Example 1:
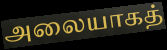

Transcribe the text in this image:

அலையாகத்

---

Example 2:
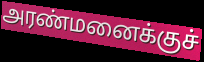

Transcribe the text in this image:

அரண்மனைக்குச்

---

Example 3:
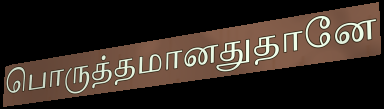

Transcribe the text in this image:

பொருத்தமானதுதானே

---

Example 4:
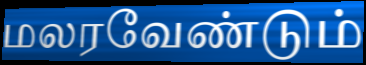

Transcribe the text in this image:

மலரவேண்டும்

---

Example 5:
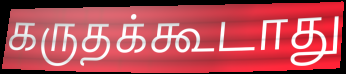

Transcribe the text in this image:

கருதக்கூடாது